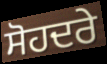
ਸੋਹਦਰੇ